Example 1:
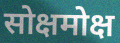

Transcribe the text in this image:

सोक्षमोक्ष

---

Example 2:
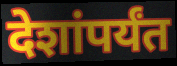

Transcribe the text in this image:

देशांपर्यंत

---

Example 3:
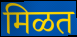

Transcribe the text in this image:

मिळत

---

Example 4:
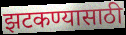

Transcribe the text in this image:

झटकण्यासाठी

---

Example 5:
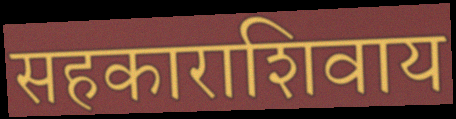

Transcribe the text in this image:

सहकाराशिवाय